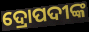
ଦ୍ରୋପଦୀଙ୍କ